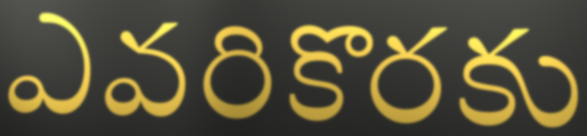
ఎవరికొరకు